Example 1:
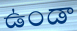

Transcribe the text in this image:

ఉండా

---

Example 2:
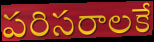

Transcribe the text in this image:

పరిసరాలకే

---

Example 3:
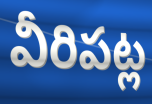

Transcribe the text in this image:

వీరిపట్ల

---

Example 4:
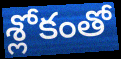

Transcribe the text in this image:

శ్లోకంతో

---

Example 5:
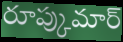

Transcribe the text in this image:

రూప్కుమార్